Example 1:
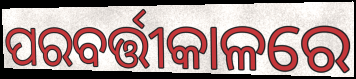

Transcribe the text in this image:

ପରବର୍ତ୍ତୀକାଳରେ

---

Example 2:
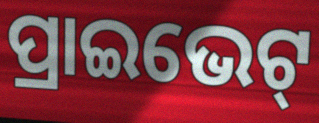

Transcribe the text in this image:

ପ୍ରାଇଭେଟ୍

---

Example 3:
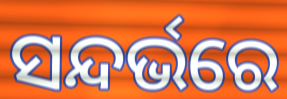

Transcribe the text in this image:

ସନ୍ଦର୍ଭରେ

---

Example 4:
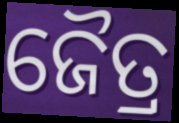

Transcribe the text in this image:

ଜୈତ୍ର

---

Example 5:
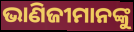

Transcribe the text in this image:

ଭାଣିଜୀମାନଙ୍କୁ